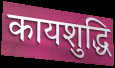
कायशुद्धि